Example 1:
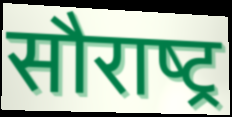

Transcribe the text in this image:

सौराष्ट्र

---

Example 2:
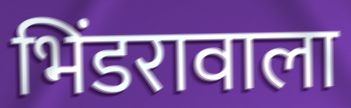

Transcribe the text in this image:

भिंडरावाला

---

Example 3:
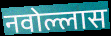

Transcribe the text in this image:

नवोल्लास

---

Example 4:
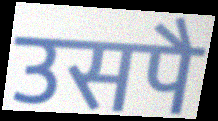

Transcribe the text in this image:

उसपै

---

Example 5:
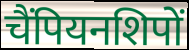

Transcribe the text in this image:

चैंपियनशिपों